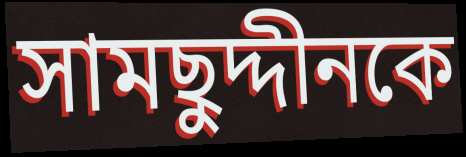
সামছুদ্দীনকে